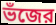
ভঁজের